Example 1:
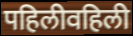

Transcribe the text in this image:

पहिलीवहिली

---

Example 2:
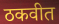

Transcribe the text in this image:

ठकवीत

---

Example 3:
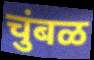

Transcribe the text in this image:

चुंबळ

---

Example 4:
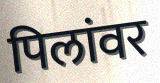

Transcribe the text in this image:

पिलांवर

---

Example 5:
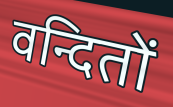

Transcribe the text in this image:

वन्दितों